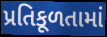
પ્રતિકૂળતામાં